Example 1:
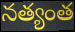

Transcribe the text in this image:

నత్యంత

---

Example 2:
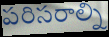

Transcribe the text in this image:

పరిసరాల్ని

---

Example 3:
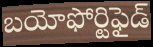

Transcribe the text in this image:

బయోఫోర్టిఫైడ్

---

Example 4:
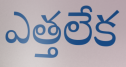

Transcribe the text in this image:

ఎత్తలేక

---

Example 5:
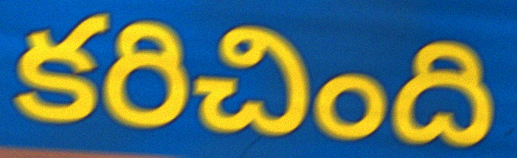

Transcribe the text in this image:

కరిచింది